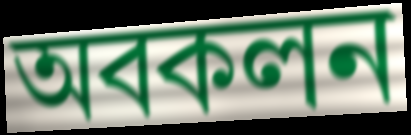
অবকলন